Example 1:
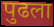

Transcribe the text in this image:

पुढला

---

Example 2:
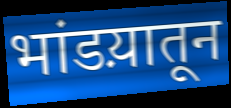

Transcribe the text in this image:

भांडय़ातून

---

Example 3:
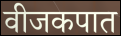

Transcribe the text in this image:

वीजकपात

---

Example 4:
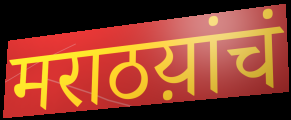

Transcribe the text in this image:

मराठय़ांचं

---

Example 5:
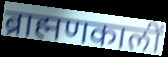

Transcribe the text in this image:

ब्राह्मणकालीं